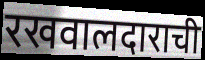
रखवालदाराची